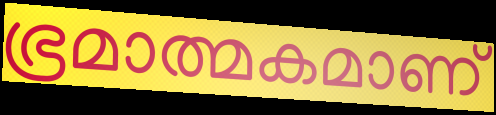
ഭ്രമാത്മകമാണ്